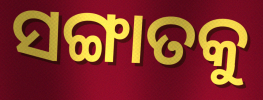
ସଙ୍ଗାତକୁ